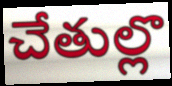
చేతుల్లొ